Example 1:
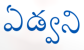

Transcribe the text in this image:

ఏడ్వని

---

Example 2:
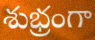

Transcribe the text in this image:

శుభ్రంగా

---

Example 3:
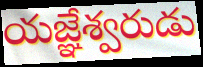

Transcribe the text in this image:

యజ్ఞేశ్వరుడు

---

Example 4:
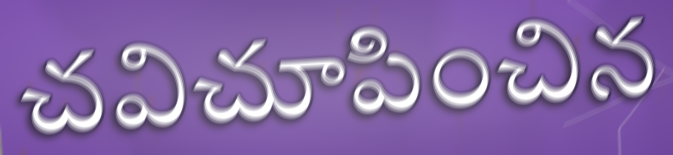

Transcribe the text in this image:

చవిచూపించిన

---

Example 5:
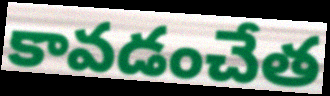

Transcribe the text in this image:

కావడంచేత